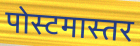
पोस्टमास्तर